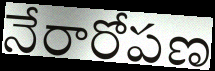
నేరారోపణ